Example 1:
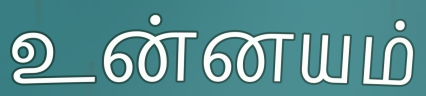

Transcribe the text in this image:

உன்னயம்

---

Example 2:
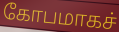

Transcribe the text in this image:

கோபமாகச்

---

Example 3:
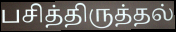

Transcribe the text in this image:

பசித்திருத்தல்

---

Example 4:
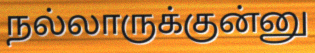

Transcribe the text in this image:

நல்லாருக்குன்னு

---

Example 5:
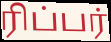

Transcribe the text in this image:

ரிப்பர்